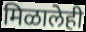
मिळालेही